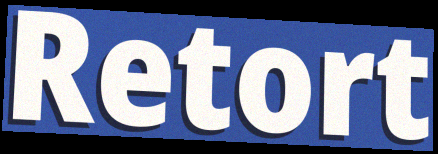
Retort